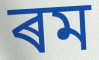
ৰম